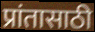
प्रांतासाठी